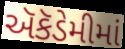
ઍકૅડેમીમાં